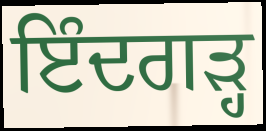
ਇੰਦਗੜ੍ਹ